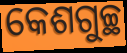
କେଶଗୁଚ୍ଛ